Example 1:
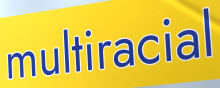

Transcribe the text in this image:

multiracial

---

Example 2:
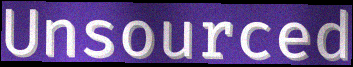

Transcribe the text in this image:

Unsourced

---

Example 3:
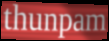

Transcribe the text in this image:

thunpam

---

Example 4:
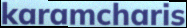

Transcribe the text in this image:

karamcharis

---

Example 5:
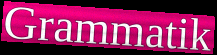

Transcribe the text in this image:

Grammatik